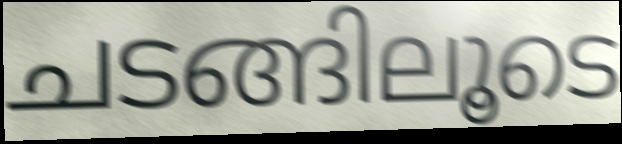
ചടങ്ങിലൂടെ